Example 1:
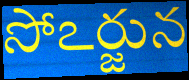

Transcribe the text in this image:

సోఽర్జున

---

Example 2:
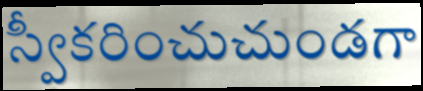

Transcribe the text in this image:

స్వీకరించుచుండగా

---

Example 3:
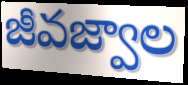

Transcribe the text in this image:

జీవజ్వాల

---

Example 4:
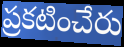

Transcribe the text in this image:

ప్రకటించేరు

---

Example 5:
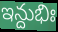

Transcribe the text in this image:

ఇన్దుభిః